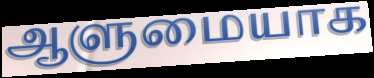
ஆளுமையாக